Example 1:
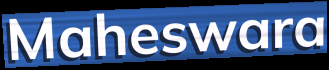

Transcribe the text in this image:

Maheswara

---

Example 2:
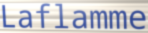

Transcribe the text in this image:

Laflamme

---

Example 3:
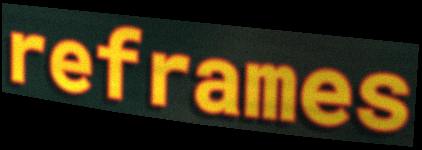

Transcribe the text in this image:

reframes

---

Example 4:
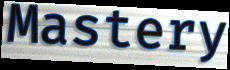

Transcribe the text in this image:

Mastery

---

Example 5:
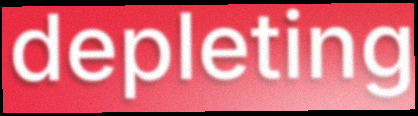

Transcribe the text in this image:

depleting